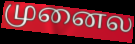
முனைல